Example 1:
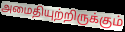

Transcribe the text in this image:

அமைதியுற்றிருக்கும்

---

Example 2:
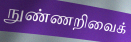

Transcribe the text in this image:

நுண்ணறிவைக்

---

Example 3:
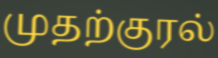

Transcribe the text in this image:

முதற்குரல்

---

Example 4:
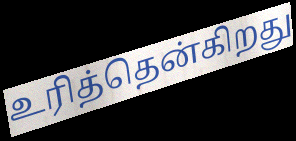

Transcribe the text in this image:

உரித்தென்கிறது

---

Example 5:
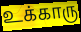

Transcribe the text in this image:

உக்காரு